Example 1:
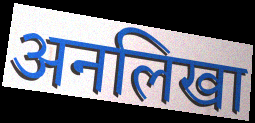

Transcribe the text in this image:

अनलिखा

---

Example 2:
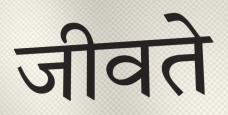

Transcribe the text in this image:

जीवते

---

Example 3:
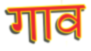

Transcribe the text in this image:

गाव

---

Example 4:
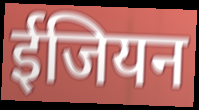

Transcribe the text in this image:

ईजियन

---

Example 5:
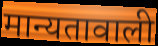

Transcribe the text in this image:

मान्यतावाली